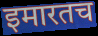
इमारतच